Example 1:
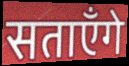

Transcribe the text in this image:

सताएँगे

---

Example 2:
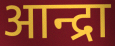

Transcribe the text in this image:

आन्द्रा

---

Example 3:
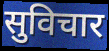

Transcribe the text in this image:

सुविचार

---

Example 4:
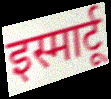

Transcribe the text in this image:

इस्मार्टू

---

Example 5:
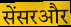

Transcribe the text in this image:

सेंसरऔर